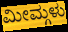
ಮೀಮ್ಗಳು